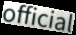
official